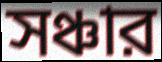
সঞ্চার